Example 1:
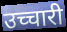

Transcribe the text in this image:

उच्चारी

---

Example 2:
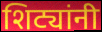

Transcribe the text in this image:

शिट्यांनी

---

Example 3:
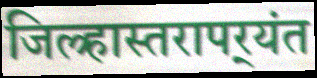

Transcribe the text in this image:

जिल्हास्तरापर्यंत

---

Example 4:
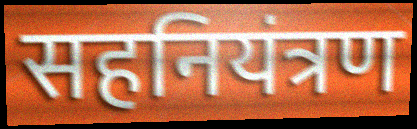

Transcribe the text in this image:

सहनियंत्रण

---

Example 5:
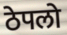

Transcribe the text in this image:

ठेपलो